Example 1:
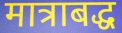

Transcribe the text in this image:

मात्राबद्ध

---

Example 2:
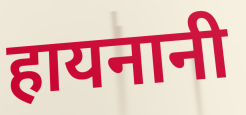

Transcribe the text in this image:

हायनानी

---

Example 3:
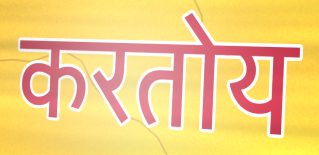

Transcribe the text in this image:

करतोय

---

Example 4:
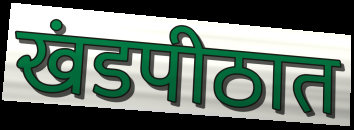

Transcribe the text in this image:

खंडपीठात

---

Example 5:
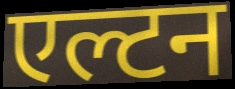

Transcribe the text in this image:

एल्टन